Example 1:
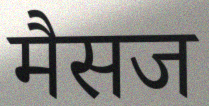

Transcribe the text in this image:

मैसज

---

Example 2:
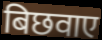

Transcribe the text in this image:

बिछवाए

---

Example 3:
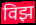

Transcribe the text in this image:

विझ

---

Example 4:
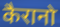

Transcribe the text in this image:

कैरानो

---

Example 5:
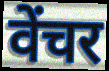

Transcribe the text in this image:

वेंचर